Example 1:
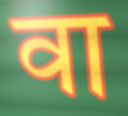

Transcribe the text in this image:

वा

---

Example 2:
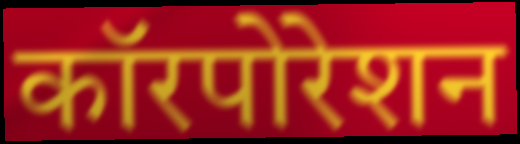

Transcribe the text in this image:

कॉरपोरेशन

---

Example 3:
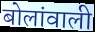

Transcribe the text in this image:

बोलांवाली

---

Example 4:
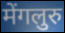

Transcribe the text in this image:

मेंगलुरु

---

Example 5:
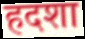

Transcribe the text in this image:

हदशा